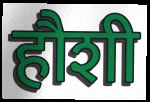
हौशी